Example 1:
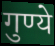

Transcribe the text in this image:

गुण्ये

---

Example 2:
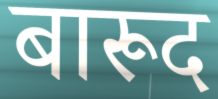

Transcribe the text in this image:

बारूद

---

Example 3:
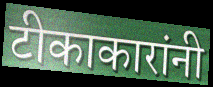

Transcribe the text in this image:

टीकाकारांनी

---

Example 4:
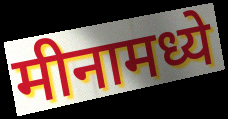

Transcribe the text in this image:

मीनामध्ये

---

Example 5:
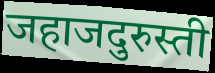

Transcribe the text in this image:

जहाजदुरुस्ती